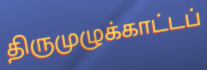
திருமுழுக்காட்டப்